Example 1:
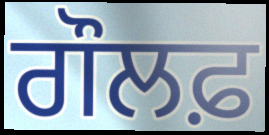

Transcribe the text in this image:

ਗੌਲਫ਼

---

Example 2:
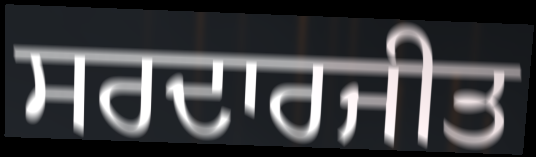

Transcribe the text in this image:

ਸਰਦਾਰਜੀਤ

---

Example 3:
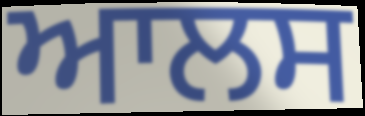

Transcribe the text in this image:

ਆਲਸ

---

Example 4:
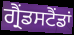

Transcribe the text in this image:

ਗ੍ਰੈਂਡਸਟੈਂਡਾਂ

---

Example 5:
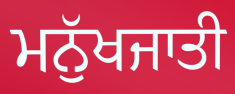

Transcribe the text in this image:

ਮਨੁੱਖਜਾਤੀ